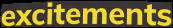
excitements